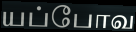
யப்போவ